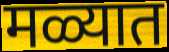
मळ्यात